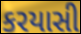
કરયાસી